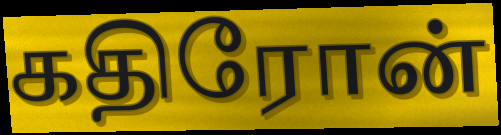
கதிரோன்